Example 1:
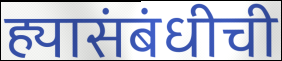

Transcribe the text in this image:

ह्यासंबंधीची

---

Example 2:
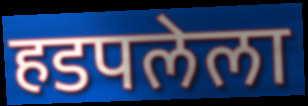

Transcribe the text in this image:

हडपलेला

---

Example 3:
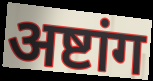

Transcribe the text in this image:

अष्टांग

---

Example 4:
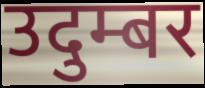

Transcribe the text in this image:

उदुम्बर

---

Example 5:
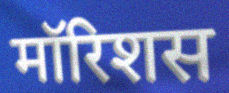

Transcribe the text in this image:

मॉरिशस